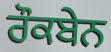
ਰੌਕਬੇਨ